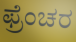
ಫ್ರೆಂಚರ